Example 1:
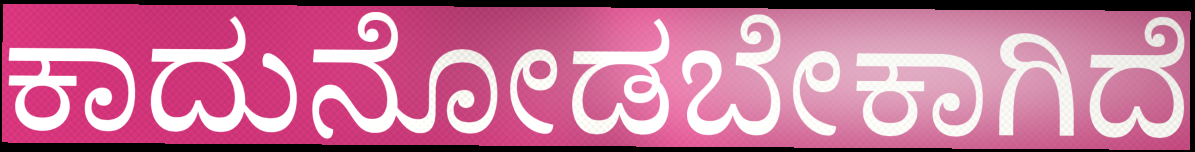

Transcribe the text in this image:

ಕಾದುನೋಡಬೇಕಾಗಿದೆ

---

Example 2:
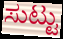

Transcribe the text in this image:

ಸುಟ್ಟು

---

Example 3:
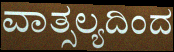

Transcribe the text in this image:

ವಾತ್ಸಲ್ಯದಿಂದ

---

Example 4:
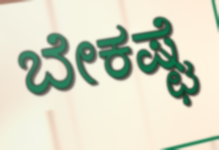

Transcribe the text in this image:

ಬೇಕಷ್ಟೆ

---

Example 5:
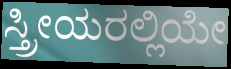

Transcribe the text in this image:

ಸ್ತ್ರೀಯರಲ್ಲಿಯೇ